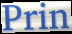
Prin